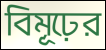
বিমূঢ়ের